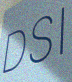
DSI